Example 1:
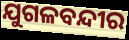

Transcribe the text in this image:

ଯୁଗଳବନ୍ଦୀର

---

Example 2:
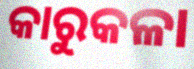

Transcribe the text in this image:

କାରୁକଳା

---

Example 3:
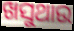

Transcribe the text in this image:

ଖସୁଥାଉ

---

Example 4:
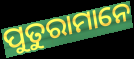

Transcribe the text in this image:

ପୁତୁରାମାନେ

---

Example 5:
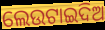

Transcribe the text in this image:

ଲେଉଟାଇଦିଅ